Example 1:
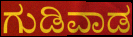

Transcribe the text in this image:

ಗುಡಿವಾಡ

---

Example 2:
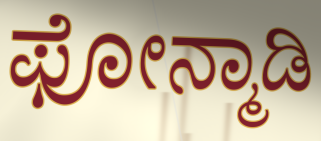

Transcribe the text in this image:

ಫೋನ್ಮಾಡಿ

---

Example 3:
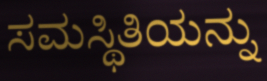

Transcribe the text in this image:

ಸಮಸ್ಥಿತಿಯನ್ನು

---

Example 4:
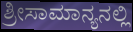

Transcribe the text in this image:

ಶ್ರೀಸಾಮಾನ್ಯನಲ್ಲಿ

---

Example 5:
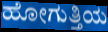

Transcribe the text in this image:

ಹೋಗುತ್ತಿಯ